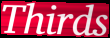
Thirds